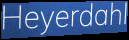
Heyerdahl